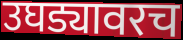
उघड्यावरच